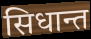
सिधान्त